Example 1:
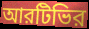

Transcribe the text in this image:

আরটিভির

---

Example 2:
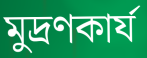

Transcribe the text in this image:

মুদ্রণকার্য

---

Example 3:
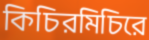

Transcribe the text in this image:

কিচিরমিচিরে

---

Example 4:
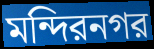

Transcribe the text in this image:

মন্দিরনগর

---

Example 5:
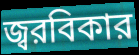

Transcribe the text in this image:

জ্বরবিকার